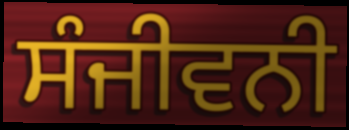
ਸੰਜੀਵਨੀ